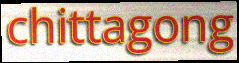
chittagong